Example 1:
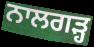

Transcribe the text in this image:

ਨਾਲਗੜ੍ਹ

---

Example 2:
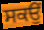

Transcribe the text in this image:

ਸਕਉਂ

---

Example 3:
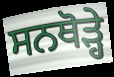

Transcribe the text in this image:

ਸਨਥੋੜ੍ਹੇ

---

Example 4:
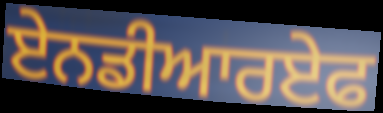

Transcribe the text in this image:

ਏਨਡੀਆਰਏਫ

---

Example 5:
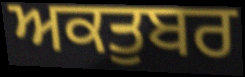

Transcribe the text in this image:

ਅਕਤੁਬਰ